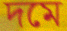
দমে